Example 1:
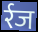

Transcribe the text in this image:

र्रज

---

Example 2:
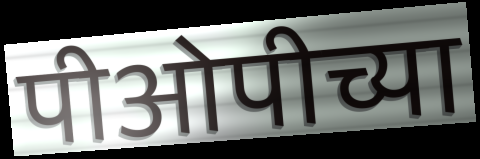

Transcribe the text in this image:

पीओपीच्या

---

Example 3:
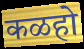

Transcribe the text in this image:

कळहो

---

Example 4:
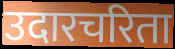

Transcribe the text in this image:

उदारचरिता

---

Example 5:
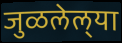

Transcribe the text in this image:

जुळलेल्या